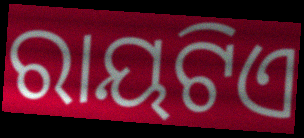
ରାୟଟିଏ